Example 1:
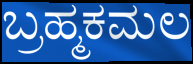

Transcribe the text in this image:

ಬ್ರಹ್ಮಕಮಲ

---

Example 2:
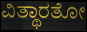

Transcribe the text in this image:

ವಿತ್ಥಾರತೋ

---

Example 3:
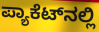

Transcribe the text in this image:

ಪ್ಯಾಕೆಟ್‌ನಲ್ಲಿ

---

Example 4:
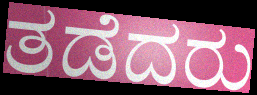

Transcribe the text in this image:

ತಡೆದರು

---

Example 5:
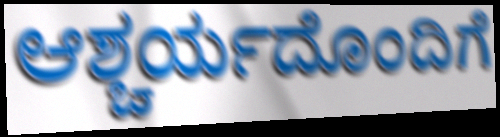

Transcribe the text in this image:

ಆಶ್ಚರ್ಯದೊಂದಿಗೆ